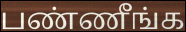
பண்ணீங்க